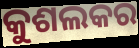
କୁଶଲକର